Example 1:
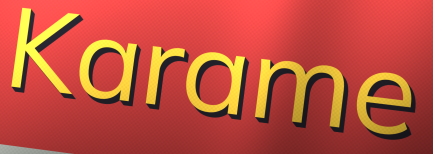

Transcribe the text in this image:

Karame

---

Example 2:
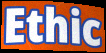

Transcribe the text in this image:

Ethic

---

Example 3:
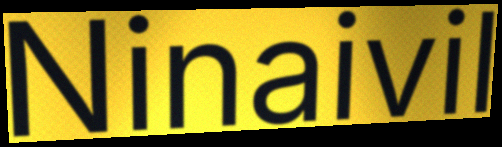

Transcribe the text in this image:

Ninaivil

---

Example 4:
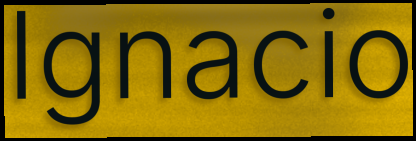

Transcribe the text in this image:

Ignacio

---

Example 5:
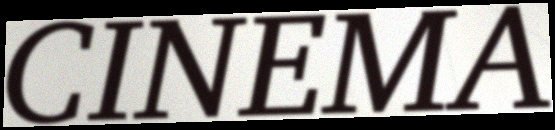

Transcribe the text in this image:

CINEMA